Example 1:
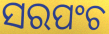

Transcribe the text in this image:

ସରପଂଚ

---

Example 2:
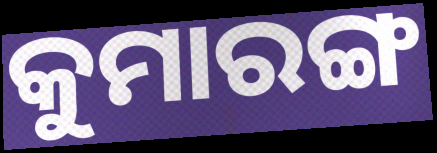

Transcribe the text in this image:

କୁମାରଙ୍ଗ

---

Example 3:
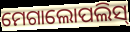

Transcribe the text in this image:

ମେଗାଲୋପଲିସ୍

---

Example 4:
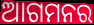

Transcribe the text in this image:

ଆଗମନର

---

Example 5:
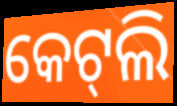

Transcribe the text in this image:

କେଟ୍‍ଲି